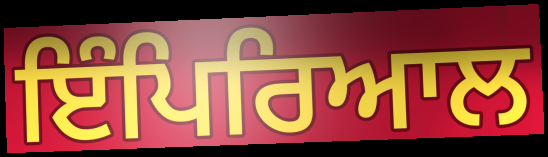
ਇੰਪਿਰਿਆਲ